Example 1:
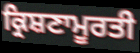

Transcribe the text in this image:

ਕ੍ਰਿਸ਼ਣਾਮੂਰਤੀ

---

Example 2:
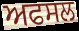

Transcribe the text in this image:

ਅਫਸਲ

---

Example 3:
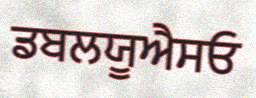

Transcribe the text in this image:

ਡਬਲਯੂਐਸਓ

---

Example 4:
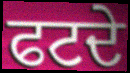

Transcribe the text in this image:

ਫਟਦੇ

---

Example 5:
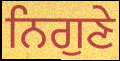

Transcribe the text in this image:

ਨਿਗੁਣੇ